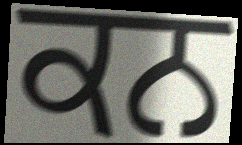
ਕਨ